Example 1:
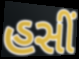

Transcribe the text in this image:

હસીં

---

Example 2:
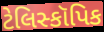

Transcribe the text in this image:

ટેલિસ્કૉપિક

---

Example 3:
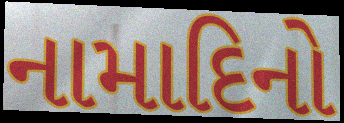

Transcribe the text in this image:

નામાદિનો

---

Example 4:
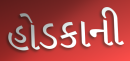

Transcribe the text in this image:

હોડકાની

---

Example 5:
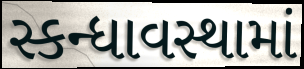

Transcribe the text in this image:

સ્કન્ધાવસ્થામાં